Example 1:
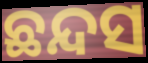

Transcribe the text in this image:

ଛନ୍ଦସ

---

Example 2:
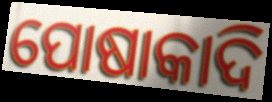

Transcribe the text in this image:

ପୋଷାକାଦି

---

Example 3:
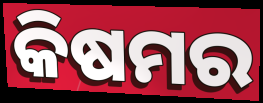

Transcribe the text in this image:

କିଷମର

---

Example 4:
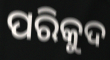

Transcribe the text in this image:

ପରିକୁଦ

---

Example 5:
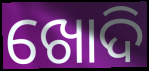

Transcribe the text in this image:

ଖୋଦି